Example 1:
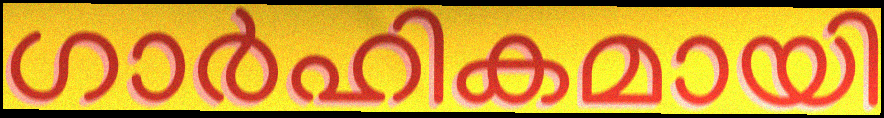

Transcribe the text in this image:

ഗാർഹികമായി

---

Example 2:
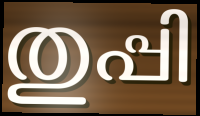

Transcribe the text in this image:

തുപ്പി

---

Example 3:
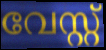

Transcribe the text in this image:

വേസ്റ്റ്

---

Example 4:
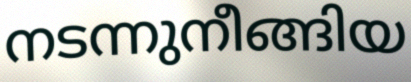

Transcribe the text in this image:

നടന്നുനീങ്ങിയ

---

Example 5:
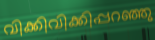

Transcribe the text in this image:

വിക്കിവിക്കിപ്പറഞ്ഞു